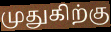
முதுகிற்கு